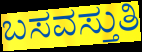
ಬಸವಸ್ತುತಿ